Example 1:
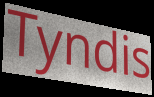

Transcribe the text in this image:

Tyndis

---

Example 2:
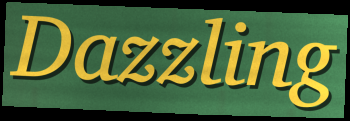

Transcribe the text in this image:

Dazzling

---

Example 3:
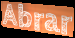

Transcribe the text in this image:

Abrar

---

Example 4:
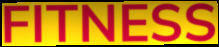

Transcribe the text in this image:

FITNESS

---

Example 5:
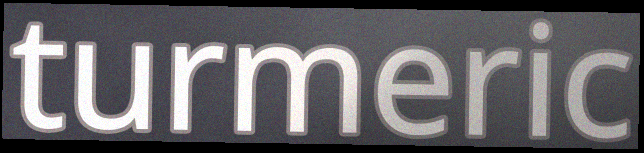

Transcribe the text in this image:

turmeric